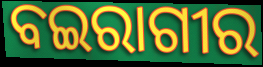
ବଇରାଗୀର